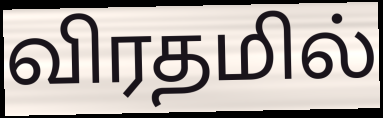
விரதமில்